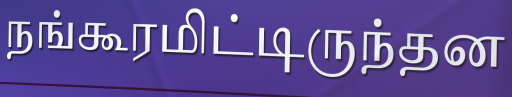
நங்கூரமிட்டிருந்தன